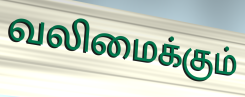
வலிமைக்கும்